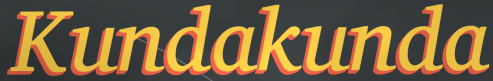
Kundakunda